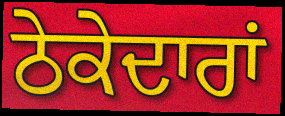
ਠੇਕੇਦਾਰਾਂ